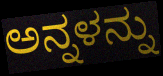
ಅನ್ನಳನ್ನು